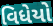
વિધેયો